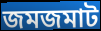
জমজমাট